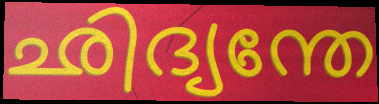
ഛിദ്യന്തേ